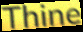
Thine